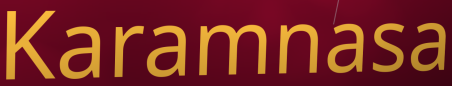
Karamnasa